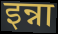
इन्ना